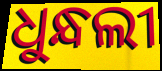
ଧୁନ୍ଧଲୀ